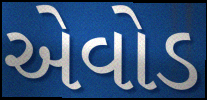
એવોડ